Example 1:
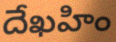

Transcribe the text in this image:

దేఖహిం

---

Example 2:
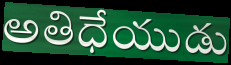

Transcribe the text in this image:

అతిధేయుడు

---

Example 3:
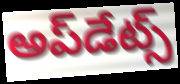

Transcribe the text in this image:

అప్‌డేట్స్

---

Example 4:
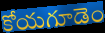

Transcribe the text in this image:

కోయగూడెం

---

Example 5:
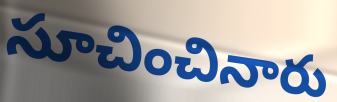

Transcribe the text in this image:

సూచించినారు